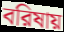
বরিষায়